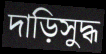
দাড়িসুদ্ধ